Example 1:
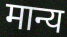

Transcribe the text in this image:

मान्य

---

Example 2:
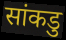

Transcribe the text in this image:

सांकडु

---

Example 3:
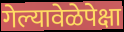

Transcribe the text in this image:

गेल्यावेळेपेक्षा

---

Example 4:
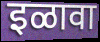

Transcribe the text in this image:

इळावा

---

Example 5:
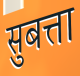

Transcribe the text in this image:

सुबत्ता